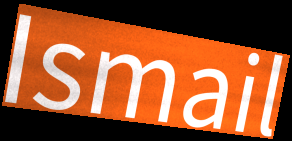
Ismail